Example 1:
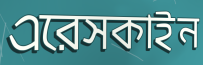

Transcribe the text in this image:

এরেসকাইন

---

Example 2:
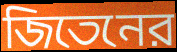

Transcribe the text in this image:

জিতেনের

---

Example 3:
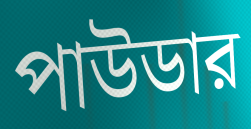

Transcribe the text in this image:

পাউডার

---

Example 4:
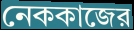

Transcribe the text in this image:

নেককাজের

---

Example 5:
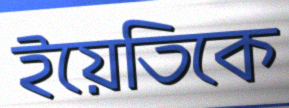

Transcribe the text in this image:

ইয়েতিকে